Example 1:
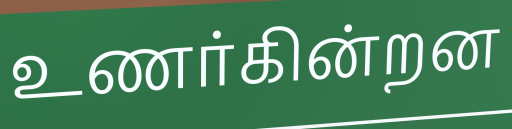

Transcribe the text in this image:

உணர்கின்றன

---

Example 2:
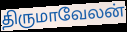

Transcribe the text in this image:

திருமாவேலன்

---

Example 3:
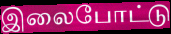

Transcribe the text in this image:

இலைபோட்டு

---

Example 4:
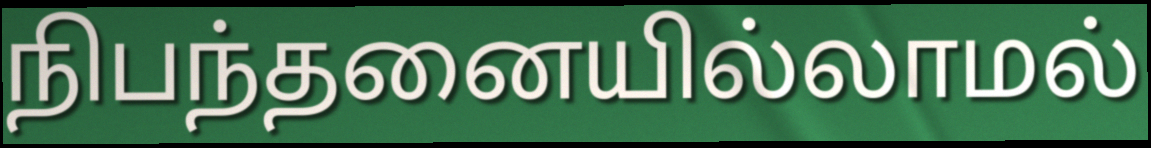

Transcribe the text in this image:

நிபந்தனையில்லாமல்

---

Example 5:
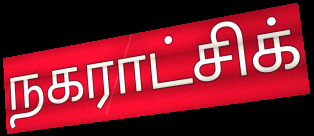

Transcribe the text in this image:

நகராட்சிக்